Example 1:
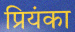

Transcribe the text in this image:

प्रियंका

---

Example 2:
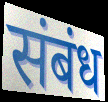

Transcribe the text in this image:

संबंध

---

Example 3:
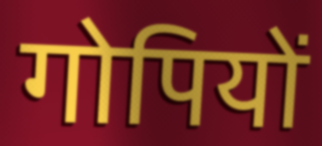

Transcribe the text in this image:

गोपियों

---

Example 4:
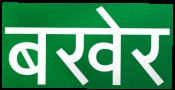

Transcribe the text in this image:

बखेर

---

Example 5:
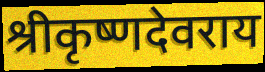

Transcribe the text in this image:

श्रीकृष्णदेवराय